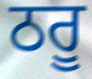
ਠਰੂ